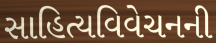
સાહિત્યવિવેચનની